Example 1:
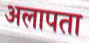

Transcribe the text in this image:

अलापता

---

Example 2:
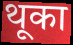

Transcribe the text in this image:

थूका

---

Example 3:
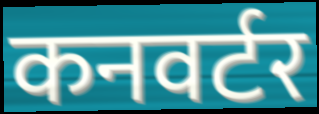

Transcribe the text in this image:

कनवर्टर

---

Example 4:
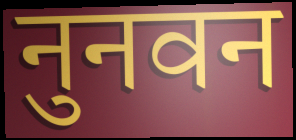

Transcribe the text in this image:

नुनवन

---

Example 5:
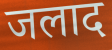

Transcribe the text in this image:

जलाद